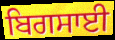
ਬਿਗਸਾਈ